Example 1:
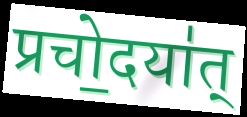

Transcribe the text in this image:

प्रचो॒दया॑त्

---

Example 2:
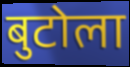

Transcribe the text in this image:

बुटोला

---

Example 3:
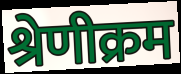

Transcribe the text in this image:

श्रेणीक्रम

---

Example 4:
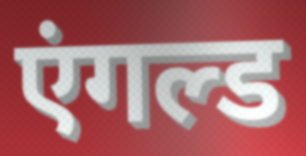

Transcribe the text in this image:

एंगल्ड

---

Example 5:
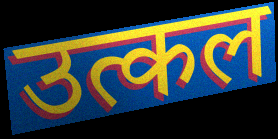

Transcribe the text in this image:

उत्कल